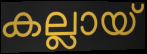
കല്ലായ്